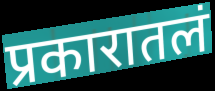
प्रकारातलं